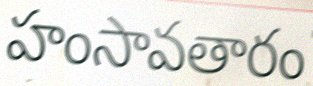
హంసావతారం